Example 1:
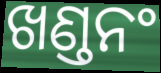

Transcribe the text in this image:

ଖଣ୍ଡନଂ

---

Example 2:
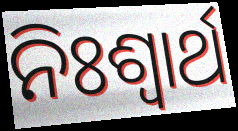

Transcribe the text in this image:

ନିଃଶ୍ୱାର୍ଥ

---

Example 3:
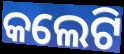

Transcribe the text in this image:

କଲେଟି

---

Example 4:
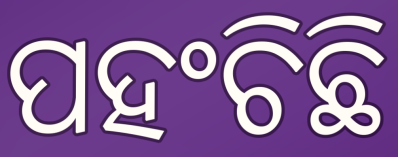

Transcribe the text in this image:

ପହଂଚିଛି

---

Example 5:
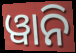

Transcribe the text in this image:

ୱାନି